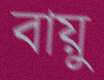
বায়ু